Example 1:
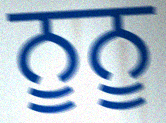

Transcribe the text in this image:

ਨੂਨੂ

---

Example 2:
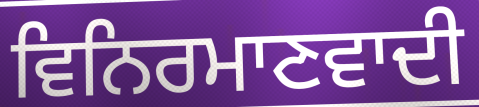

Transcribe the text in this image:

ਵਿਨਿਰਮਾਣਵਾਦੀ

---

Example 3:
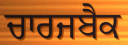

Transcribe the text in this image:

ਚਾਰਜਬੈਕ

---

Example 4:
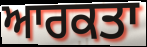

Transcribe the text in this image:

ਆਰਕਤਾ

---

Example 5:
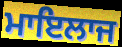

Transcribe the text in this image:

ਮਾਇਲਾਜ